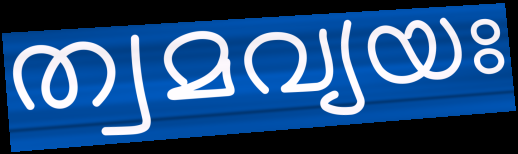
ത്വമവ്യയഃ